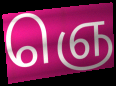
ஞெ